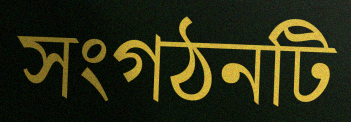
সংগঠনটি